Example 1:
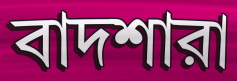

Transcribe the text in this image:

বাদশারা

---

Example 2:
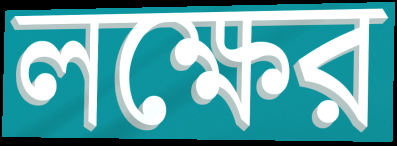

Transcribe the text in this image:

লক্ষের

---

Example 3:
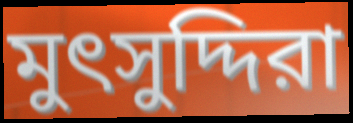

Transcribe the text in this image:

মুৎসুদ্দিরা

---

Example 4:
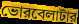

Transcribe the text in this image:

ভোরবেলাটার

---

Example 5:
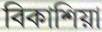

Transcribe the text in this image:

বিকাশিয়া